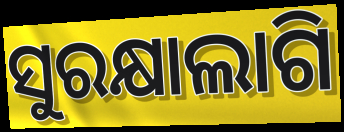
ସୁରକ୍ଷାଲାଗି